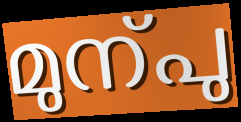
മുന്പു